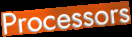
Processors